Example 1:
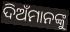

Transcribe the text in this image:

ଦିଅଁମାନଙ୍କୁ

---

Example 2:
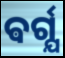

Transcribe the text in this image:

ଵର୍ଗ୍ଯ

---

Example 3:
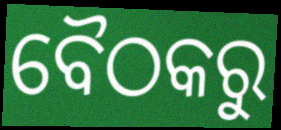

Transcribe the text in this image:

ବୈଠକରୁ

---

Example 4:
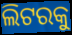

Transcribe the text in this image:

ଲିଟରକୁ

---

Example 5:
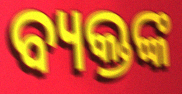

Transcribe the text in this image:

ବ୍ୟକ୍ତଙ୍କ